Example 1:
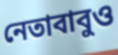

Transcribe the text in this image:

নেতাবাবুও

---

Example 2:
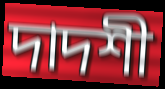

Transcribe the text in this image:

দাদশী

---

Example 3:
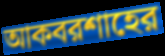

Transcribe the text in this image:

আকবরশাহের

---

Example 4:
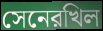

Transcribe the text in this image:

সেনেরখিল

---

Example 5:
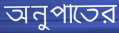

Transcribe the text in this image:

অনুপাতের